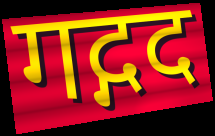
गद्गद